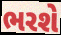
ભરશે